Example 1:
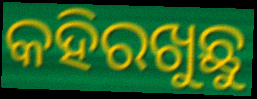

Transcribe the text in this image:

କହିରଖୁଛୁ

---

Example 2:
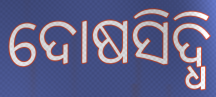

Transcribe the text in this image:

ଦୋଷସିଦ୍ଧି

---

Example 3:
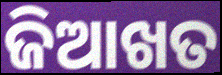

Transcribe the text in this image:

ଜିଆଖତ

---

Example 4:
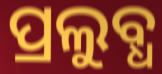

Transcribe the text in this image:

ପ୍ରଲୁବ୍ଧ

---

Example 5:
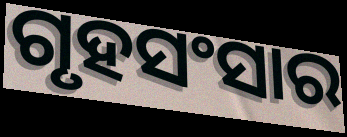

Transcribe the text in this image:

ଗୃହସଂସାର